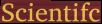
Scientifc